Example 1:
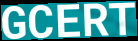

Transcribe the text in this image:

GCERT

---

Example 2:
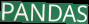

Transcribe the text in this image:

PANDAS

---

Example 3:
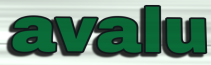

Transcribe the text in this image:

avalu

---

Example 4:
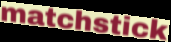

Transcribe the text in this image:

matchstick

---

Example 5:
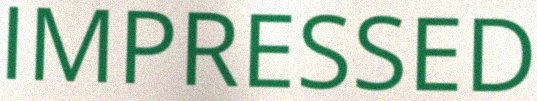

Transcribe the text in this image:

IMPRESSED